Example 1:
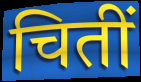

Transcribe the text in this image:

चितीं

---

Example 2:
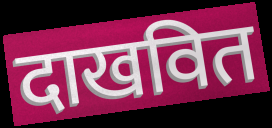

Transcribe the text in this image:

दाखवित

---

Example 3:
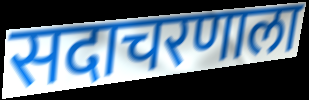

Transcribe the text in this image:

सदाचरणाला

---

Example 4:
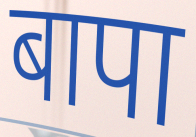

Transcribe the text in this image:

बापा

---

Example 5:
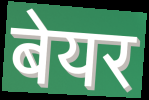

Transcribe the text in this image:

बेयर